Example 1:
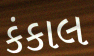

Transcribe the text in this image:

કંકાલ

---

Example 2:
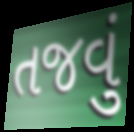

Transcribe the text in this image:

તજવું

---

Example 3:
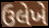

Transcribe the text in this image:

ઉલેખે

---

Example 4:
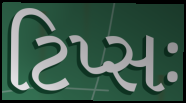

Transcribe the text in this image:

ટિપ્સઃ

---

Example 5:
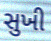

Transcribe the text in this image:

સુખી